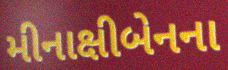
મીનાક્ષીબેનના